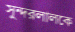
সুন্দরলালকে